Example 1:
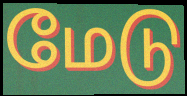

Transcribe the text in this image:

மேடு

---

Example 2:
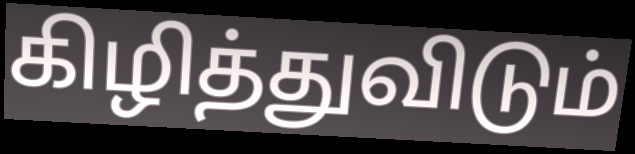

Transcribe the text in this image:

கிழித்துவிடும்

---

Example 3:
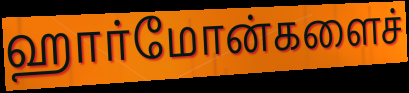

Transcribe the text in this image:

ஹார்மோன்களைச்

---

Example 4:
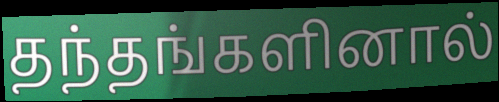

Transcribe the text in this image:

தந்தங்களினால்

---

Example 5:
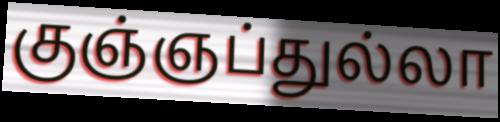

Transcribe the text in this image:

குஞ்ஞப்துல்லா